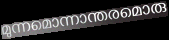
മുന്നമൊന്നാന്തരമൊരു